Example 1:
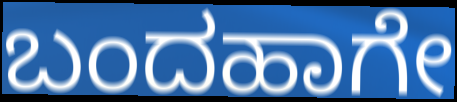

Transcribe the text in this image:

ಬಂದಹಾಗೇ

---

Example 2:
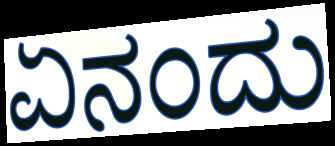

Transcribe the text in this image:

ಏನಂದು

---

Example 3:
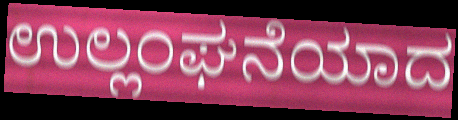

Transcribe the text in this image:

ಉಲ್ಲಂಘನೆಯಾದ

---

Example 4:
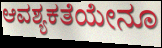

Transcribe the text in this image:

ಆವಶ್ಯಕತೆಯೇನೂ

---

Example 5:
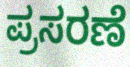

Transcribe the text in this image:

ಪ್ರಸರಣೆ